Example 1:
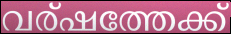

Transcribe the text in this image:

വര്ഷത്തേക്ക്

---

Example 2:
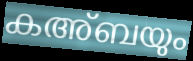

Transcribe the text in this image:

കഅ്ബയും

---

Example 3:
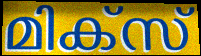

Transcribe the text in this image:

മിക്‌സ്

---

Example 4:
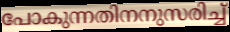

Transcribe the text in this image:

പോകുന്നതിനനുസരിച്ച്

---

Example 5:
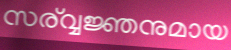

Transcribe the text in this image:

സര്വ്വജ്ഞനുമായ